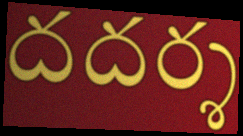
దదర్శ